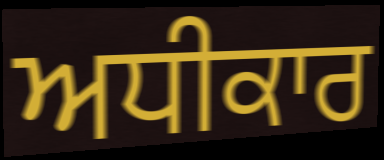
ਅਧੀਕਾਰ